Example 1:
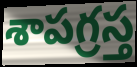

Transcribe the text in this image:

శాపగ్రస్త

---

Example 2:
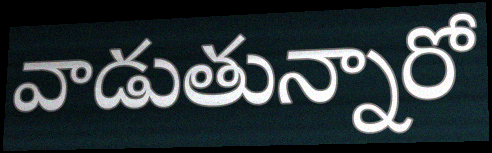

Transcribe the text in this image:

వాడుతున్నారో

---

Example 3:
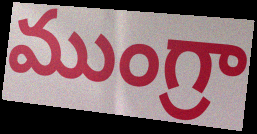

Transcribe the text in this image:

ముంగ్రా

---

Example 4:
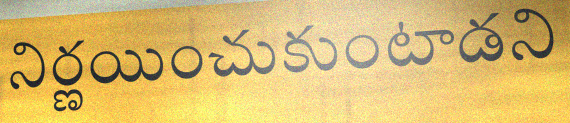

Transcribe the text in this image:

నిర్ణయించుకుంటాడని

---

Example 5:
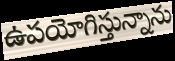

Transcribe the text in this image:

ఉపయోగిస్తున్నాను